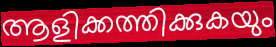
ആളിക്കത്തിക്കുകയും